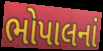
ભોપાલનાં